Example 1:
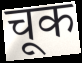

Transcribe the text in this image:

चूक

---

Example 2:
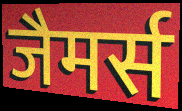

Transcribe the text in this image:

जैमर्स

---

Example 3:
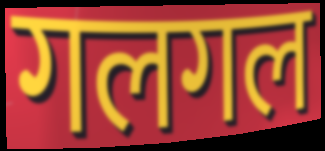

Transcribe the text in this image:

गलगल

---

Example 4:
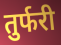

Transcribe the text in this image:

तुर्फरी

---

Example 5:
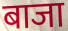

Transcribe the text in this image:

बाजा